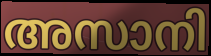
അസാനി